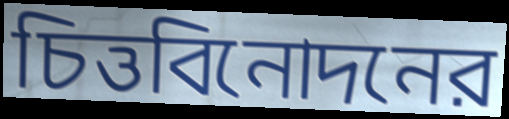
চিত্তবিনোদনের